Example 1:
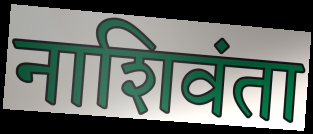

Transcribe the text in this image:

नाशिवंता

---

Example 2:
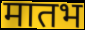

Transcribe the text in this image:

मातभ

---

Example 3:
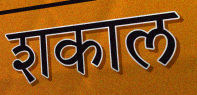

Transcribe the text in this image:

शकाल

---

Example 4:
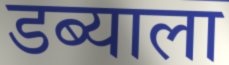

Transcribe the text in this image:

डब्याला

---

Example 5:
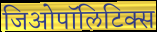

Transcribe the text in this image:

जिओपॉलिटिक्स